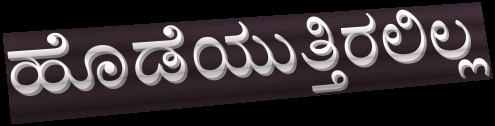
ಹೊಡೆಯುತ್ತಿರಲಿಲ್ಲ